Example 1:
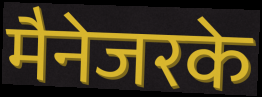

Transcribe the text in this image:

मैनेजरके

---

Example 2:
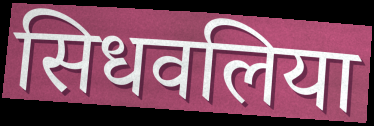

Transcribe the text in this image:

सिधवलिया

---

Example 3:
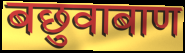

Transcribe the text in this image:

बछुवाबाण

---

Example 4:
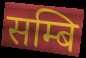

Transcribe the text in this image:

सम्बि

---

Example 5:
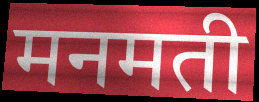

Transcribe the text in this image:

मनमती